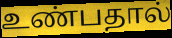
உண்பதால்